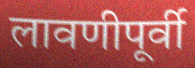
लावणीपूर्वी